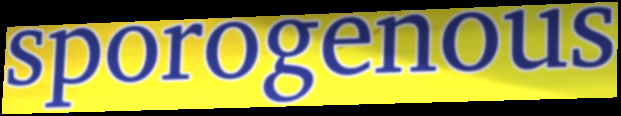
sporogenous